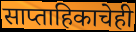
साप्ताहिकाचेही